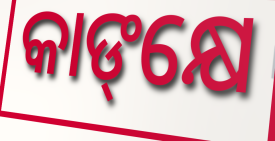
କାଙ୍‌କ୍ଷେ